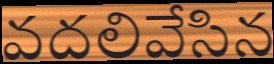
వదలివేసిన